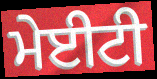
ਮੇਈਟੀ